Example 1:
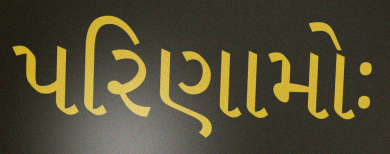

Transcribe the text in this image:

પરિણામોઃ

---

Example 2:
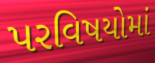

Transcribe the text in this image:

પરવિષયોમાં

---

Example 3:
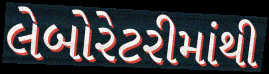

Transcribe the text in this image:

લેબોરેટરીમાંથી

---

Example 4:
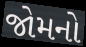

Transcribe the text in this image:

જોમનો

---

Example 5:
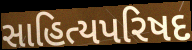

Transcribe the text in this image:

સાહિત્યપરિષદ